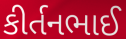
કીર્તનભાઈ